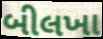
બીલખા